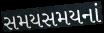
સમયસમયનાં